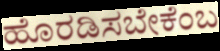
ಹೊರಡಿಸಬೇಕೆಂಬ